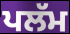
ਪਲੱਮ